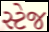
સ્ટેજ